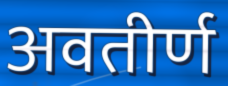
अवतीर्ण